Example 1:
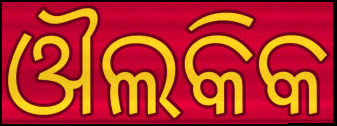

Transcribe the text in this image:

ଔଲକିକ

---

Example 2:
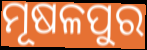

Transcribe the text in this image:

ମୂଷଳପୁର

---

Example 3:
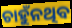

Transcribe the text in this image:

ଚାହୁଁନଥିବ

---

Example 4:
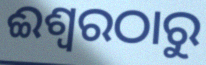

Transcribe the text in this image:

ଈଶ୍ୱରଠାରୁ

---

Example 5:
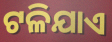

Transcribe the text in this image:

ଟଳିଯାଏ